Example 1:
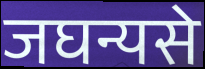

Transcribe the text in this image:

जघन्यसे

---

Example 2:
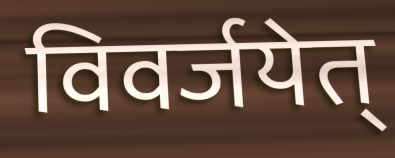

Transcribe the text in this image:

विवर्जयेत्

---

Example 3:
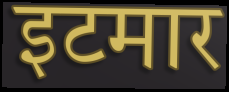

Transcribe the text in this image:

इटमार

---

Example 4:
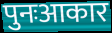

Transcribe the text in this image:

पुनःआकार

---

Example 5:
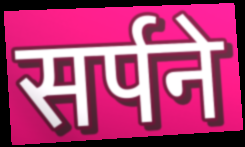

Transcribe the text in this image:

सर्पने